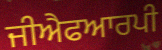
ਜੀਐਫਆਰਪੀ